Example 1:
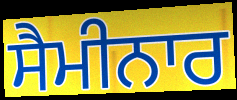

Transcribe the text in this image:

ਸੈਮੀਨਾਰ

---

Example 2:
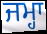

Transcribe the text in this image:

ਜਮ੍ਹਾ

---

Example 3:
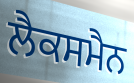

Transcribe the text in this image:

ਲੈਕਸਮੈਨ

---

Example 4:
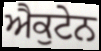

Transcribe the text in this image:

ਐਕੁਟੇਨ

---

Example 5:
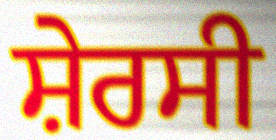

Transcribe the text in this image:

ਸ਼ੇਰਸੀ